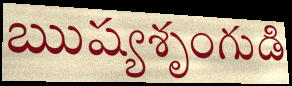
ఋష్యశృంగుడి